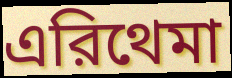
এরিথেমা